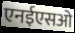
एनईएसओ